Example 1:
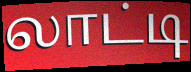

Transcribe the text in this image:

லாட்டி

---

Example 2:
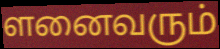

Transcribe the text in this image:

ளனைவரும்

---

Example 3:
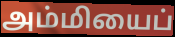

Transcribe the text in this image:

அம்மியைப்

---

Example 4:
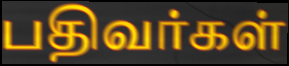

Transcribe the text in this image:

பதிவர்கள்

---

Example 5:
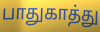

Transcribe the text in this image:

பாதுகாத்து